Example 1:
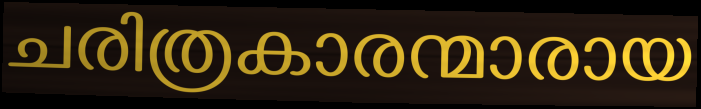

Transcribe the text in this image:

ചരിത്രകാരന്മാരായ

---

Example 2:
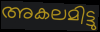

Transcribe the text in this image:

അകലമിട്ടു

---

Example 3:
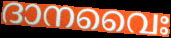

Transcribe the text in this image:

ദാനവൈഃ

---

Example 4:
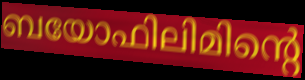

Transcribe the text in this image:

ബയോഫിലിമിന്റെ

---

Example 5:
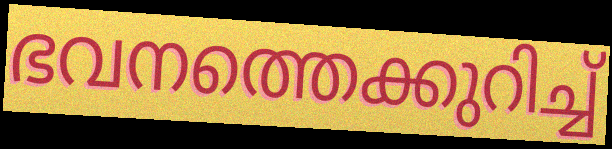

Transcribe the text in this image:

ഭവനത്തെക്കുറിച്ച്